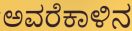
ಅವರೆಕಾಳಿನ